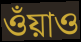
ওঁয়াও